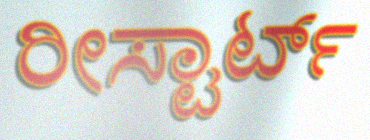
ರೀಸ್ಟಾರ್ಟ್